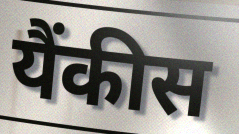
यैंकीस